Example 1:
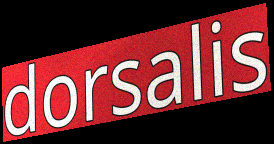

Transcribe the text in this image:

dorsalis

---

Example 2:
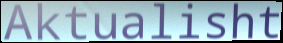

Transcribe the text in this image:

Aktualisht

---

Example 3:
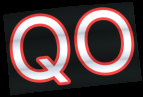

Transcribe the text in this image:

QO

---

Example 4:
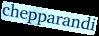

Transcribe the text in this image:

chepparandi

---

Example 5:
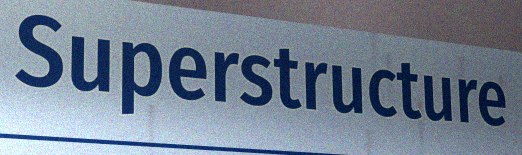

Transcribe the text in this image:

Superstructure